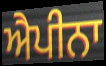
ਐਪੀਨਾ